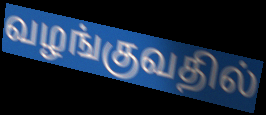
வழங்குவதில்